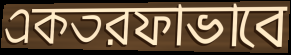
একতরফাভাবে